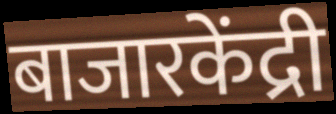
बाजारकेंद्री